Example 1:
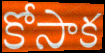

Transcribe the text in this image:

కోసాక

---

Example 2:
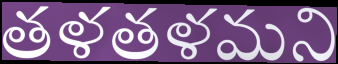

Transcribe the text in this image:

తళతళమని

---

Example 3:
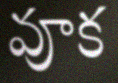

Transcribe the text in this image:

వూక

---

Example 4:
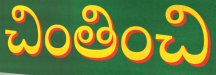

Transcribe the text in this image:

చింతించి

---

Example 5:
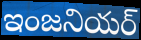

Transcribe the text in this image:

ఇంజనియర్